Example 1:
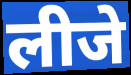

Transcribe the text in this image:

लीजे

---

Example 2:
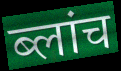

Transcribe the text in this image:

ब्लांच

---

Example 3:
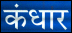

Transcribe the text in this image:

कंधार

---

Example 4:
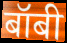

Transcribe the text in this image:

बॉबी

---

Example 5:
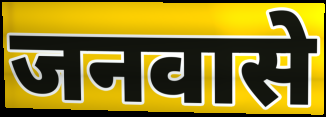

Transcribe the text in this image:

जनवासे